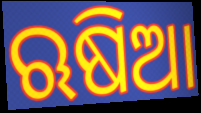
ଋଷିଆ